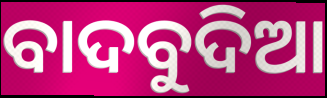
ବାଦବୁଦିଆ